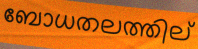
ബോധതലത്തില്